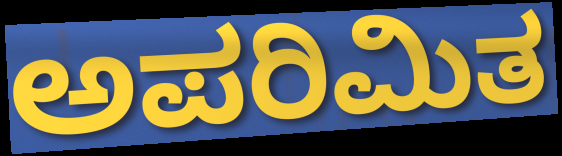
ಅಪರಿಮಿತ